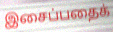
இசைப்பதைக்